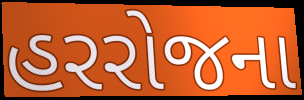
હરરોજના